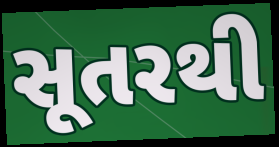
સૂતરથી